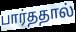
பார்ததால்